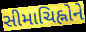
સીમાચિહ્નોને